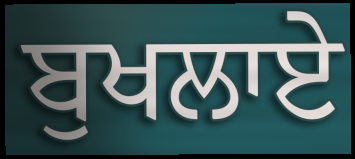
ਬੁਖਲਾਏ